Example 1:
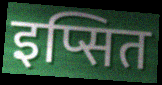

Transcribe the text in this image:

इप्सित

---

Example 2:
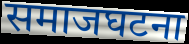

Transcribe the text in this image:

समाजघटना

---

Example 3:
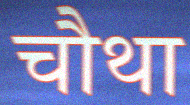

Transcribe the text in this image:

चौथा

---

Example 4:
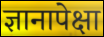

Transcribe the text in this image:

ज्ञानापेक्षा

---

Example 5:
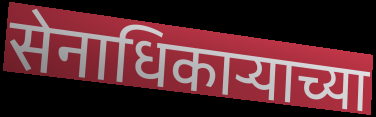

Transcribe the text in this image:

सेनाधिकाऱ्याच्या